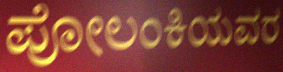
ಪೋಲಂಕಿಯವರ